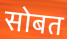
सोबत